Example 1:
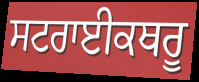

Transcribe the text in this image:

ਸਟਰਾਈਕਥਰੂ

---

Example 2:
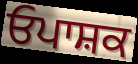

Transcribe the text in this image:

ਓਪਾਸ਼ਕ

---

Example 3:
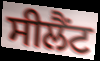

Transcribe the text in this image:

ਸੀਲੈਂਟ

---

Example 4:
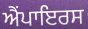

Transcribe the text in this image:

ਐਂਪਾਇਰਸ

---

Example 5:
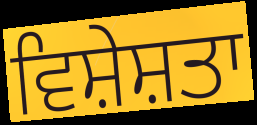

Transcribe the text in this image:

ਵਿਸ਼ੇਸ਼ਤਾ